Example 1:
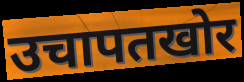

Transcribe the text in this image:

उचापतखोर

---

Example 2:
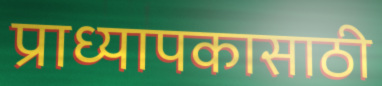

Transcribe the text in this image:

प्राध्यापकासाठी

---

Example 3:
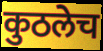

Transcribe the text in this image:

कुठलेच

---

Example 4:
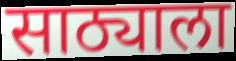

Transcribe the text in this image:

साठ्याला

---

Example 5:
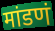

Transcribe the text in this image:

मांडणं